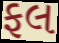
ફલ